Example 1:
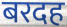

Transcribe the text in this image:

बरदह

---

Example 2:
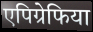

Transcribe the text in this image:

एपिग्रेफिया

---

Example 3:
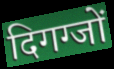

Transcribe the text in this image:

दिगग्जों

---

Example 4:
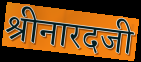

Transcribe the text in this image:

श्रीनारदजी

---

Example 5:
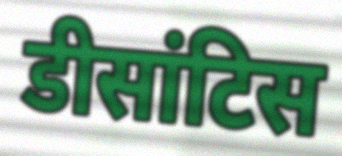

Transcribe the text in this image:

डीसांटिस